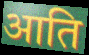
आति